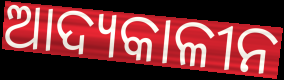
ଆଦ୍ୟକାଳୀନ